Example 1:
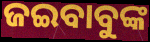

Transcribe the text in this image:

ଜଇବାବୁଙ୍କ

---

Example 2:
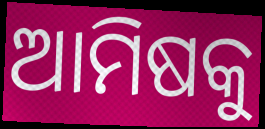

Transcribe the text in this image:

ଆମିଷକୁ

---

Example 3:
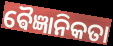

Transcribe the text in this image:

ଵୈଜ୍ଞାନିକତା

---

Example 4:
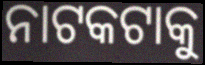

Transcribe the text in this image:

ନାଟକଟାକୁ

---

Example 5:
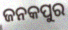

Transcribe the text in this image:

ଜନକପୁର